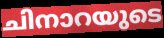
ചിനാറയുടെ